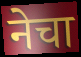
नेचा